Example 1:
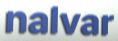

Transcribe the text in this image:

nalvar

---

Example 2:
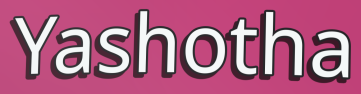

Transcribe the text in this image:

Yashotha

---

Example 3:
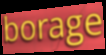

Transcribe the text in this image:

borage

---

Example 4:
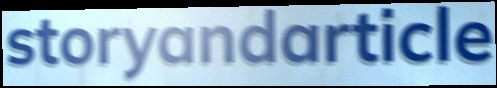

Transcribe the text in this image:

storyandarticle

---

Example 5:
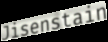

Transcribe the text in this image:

Jisenstain